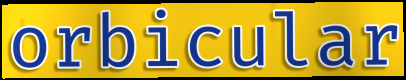
orbicular